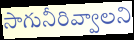
సాగునీరివ్వాలని